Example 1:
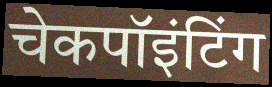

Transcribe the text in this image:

चेकपॉइंटिंग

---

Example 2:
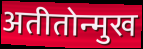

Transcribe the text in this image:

अतीतोन्मुख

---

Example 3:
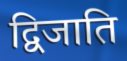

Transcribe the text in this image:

द्विजाति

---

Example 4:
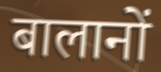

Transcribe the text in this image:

बालानों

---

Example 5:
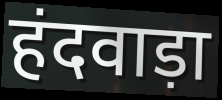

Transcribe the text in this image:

हंदवाड़ा